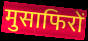
मुसाफिरों